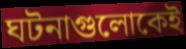
ঘটনাগুলোকেই